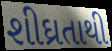
શીઘ્રતાથી